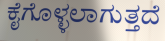
ಕೈಗೊಳ್ಳಲಾಗುತ್ತದೆ